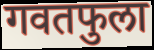
गवतफुला